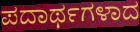
ಪದಾರ್ಥಗಳಾದ